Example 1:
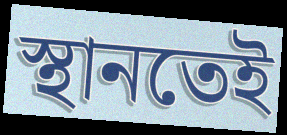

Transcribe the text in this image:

স্থানতেই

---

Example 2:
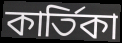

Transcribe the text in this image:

কাৰ্তিকা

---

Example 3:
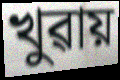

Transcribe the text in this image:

খুৱায়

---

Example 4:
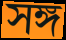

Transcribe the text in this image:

সঙ্গ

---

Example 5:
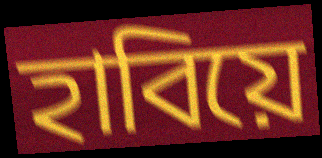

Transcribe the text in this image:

হাবিয়ে